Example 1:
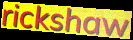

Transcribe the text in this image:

rickshaw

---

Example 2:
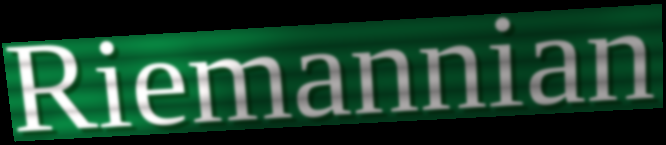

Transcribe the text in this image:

Riemannian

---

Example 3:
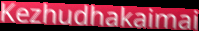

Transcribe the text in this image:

Kezhudhakaimai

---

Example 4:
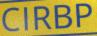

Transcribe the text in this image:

CIRBP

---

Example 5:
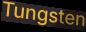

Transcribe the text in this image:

Tungsten